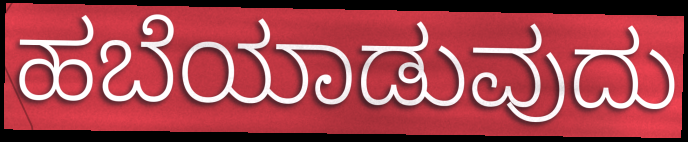
ಹಬೆಯಾಡುವುದು